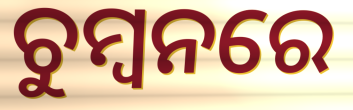
ଚୁମ୍ୱନରେ